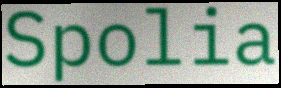
Spolia